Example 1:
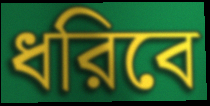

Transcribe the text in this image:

ধরিবে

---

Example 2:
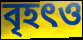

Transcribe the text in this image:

বৃহৎও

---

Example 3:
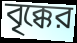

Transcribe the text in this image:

বৃক্কের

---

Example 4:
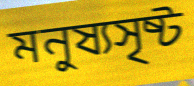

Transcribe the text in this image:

মনুষ্যসৃষ্ট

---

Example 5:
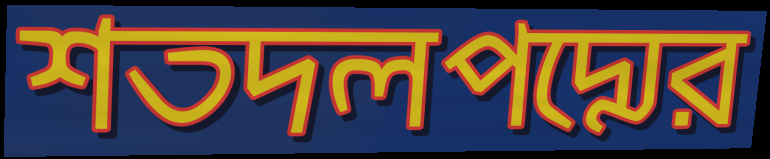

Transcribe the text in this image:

শতদলপদ্মের